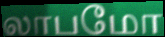
லாபமோ